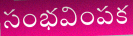
సంభవింపక